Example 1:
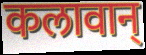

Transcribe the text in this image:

कलावान्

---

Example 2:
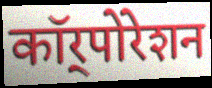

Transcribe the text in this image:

कॉर्पोरेशन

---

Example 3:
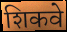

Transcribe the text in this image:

शिकवे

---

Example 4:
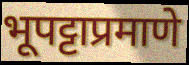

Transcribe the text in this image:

भूपट्टाप्रमाणे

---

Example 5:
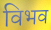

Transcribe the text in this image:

विभव